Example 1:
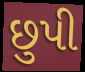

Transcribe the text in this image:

છુપી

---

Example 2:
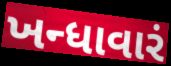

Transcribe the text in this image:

ખન્ધાવારં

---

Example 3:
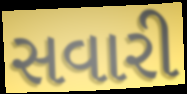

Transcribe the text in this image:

સવારી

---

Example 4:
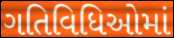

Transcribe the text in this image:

ગતિવિધિઓમાં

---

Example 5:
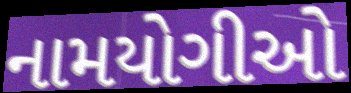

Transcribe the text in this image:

નામયોગીઓ